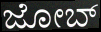
ಜೋಬ್